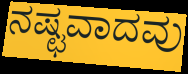
ನಷ್ಟವಾದವು